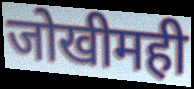
जोखीमही